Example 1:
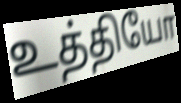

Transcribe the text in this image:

உத்தியோ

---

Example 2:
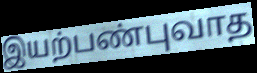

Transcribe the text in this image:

இயற்பண்புவாத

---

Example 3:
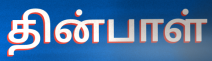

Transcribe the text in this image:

தின்பாள்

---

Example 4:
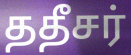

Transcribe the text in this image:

ததீசர்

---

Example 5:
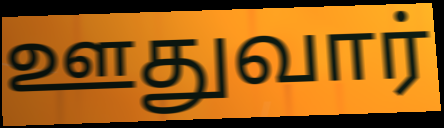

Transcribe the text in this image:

ஊதுவார்